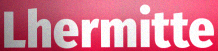
Lhermitte